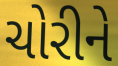
ચોરીને